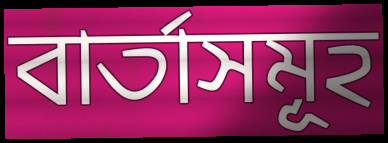
বাৰ্তাসমূহ